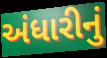
અંધારીનું